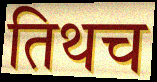
तिथच